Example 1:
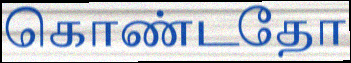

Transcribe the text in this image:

கொண்டதோ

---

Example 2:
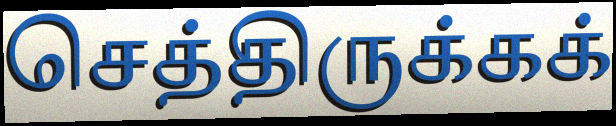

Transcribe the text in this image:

செத்திருக்கக்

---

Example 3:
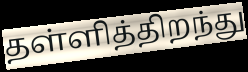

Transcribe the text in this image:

தள்ளித்திறந்து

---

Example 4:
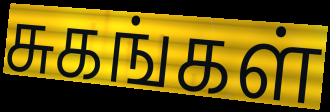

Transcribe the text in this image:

சுகங்கள்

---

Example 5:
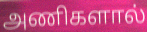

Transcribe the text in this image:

அணிகளால்